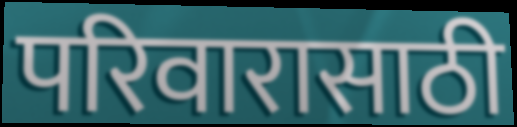
परिवारासाठी